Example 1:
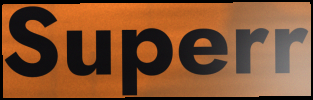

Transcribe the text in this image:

Superr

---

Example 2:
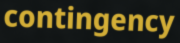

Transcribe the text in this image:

contingency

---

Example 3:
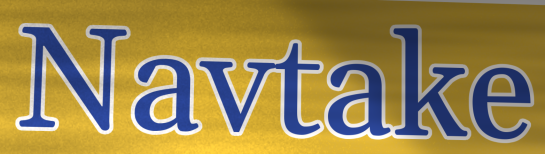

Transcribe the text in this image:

Navtake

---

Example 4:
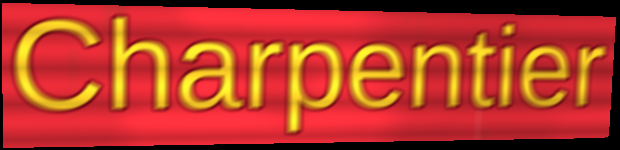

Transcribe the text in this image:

Charpentier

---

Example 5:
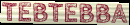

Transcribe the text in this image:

TEBTEBBA